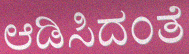
ಆಡಿಸಿದಂತೆ